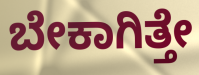
ಬೇಕಾಗಿತ್ತೇ